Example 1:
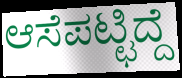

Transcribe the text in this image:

ಆಸೆಪಟ್ಟಿದ್ದೆ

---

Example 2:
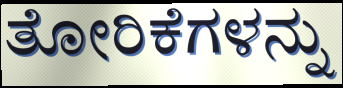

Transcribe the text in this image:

ತೋರಿಕೆಗಳನ್ನು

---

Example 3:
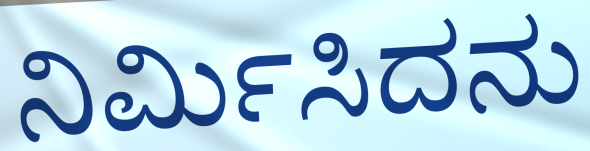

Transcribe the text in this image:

ನಿರ್ಮಿಸಿದನು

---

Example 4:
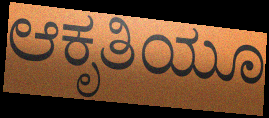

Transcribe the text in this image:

ಆಕೃತಿಯೂ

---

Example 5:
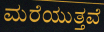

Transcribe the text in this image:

ಮರೆಯುತ್ತವೆ